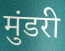
मुंडरी